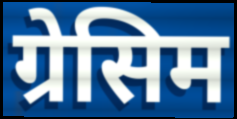
ग्रेसिम